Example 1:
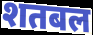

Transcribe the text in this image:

शतबल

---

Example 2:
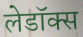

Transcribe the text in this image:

लेडॉक्स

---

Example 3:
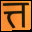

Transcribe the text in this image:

त्त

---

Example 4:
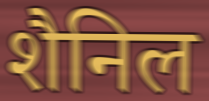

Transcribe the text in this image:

शैनिल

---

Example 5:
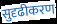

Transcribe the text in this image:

सुदृढीकरण